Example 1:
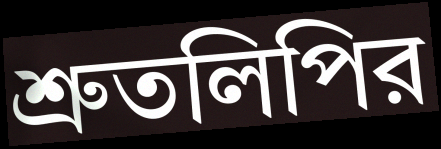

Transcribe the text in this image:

শ্রুতলিপির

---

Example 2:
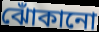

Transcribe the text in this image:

ঝোঁকানো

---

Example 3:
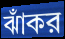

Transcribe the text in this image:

ঝাঁকর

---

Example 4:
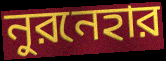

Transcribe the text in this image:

নুরনেহার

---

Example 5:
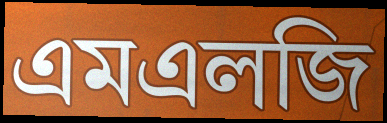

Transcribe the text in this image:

এমএলজি